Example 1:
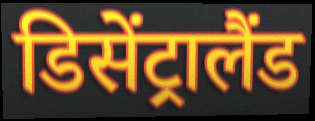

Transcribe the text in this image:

डिसेंट्रालैंड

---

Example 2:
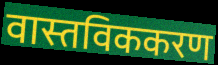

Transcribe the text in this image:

वास्तविककरण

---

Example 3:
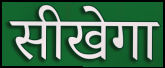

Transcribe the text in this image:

सीखेगा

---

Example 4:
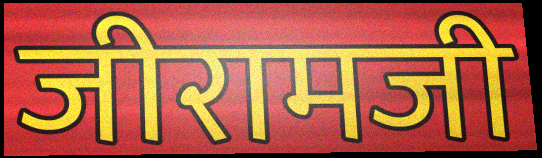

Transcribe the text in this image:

जीरामजी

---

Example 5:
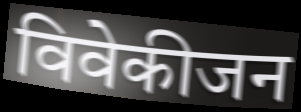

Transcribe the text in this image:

विवेकीजन